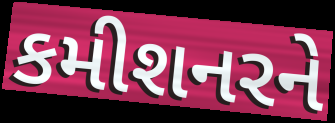
કમીશનરને